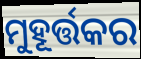
ମୁହୂର୍ତ୍ତକର